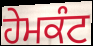
ਹੇਮਕੰਟ